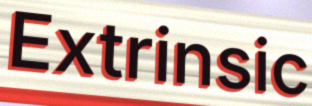
Extrinsic